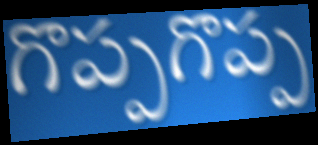
గొప్పగొప్ప